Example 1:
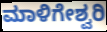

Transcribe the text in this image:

ಮಾಳಿಗೇಶ್ವರಿ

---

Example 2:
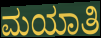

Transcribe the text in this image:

ಮಯಾತಿ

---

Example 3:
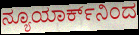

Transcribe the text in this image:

ನ್ಯೂಯಾರ್ಕ್‌ನಿಂದ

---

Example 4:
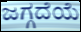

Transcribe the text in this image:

ಜಗ್ಗದೆಯೆ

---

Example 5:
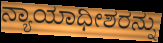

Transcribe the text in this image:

ನ್ಯಾಯಾಧೀಶರನ್ನು